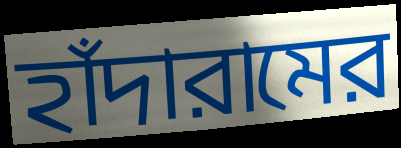
হাঁদারামের